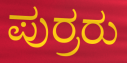
ಪುರ್ರರು